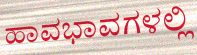
ಹಾವಭಾವಗಳಲ್ಲಿ